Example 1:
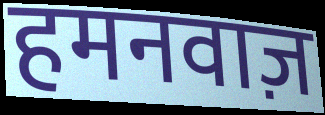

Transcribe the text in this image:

हमनवाज़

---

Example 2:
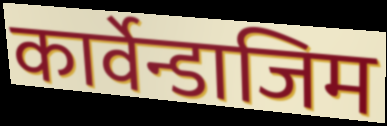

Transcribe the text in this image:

कार्वेन्डाजिम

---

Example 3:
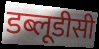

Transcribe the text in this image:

डब्लूडीसी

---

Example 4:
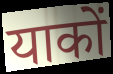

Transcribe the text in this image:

याकों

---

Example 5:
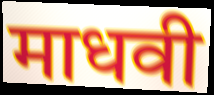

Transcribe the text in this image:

माधवी